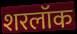
शरलॉक